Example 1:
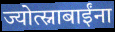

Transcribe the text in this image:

ज्योत्स्नाबाईंना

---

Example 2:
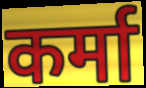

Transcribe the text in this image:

कर्मा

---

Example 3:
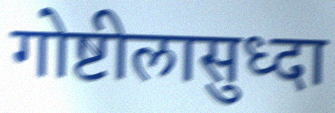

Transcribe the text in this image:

गोष्टीलासुध्दा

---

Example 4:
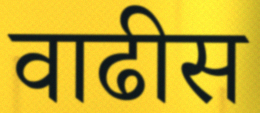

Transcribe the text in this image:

वाढीस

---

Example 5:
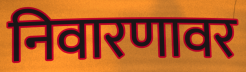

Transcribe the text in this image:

निवारणावर